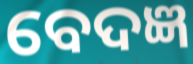
ବେଦଜ୍ଞ